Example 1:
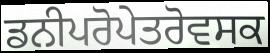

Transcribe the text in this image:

ਡਨੀਪਰੋਪੇਤਰੋਵਸਕ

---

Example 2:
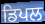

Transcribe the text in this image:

ਡਿਪਲ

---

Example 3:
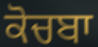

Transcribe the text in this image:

ਕੋਚਬਾ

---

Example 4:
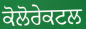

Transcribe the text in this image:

ਕੋਲੋਰੇਕਟਲ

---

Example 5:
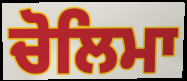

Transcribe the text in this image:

ਚੋਲਿਮਾ